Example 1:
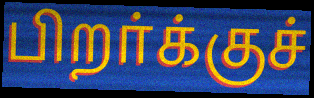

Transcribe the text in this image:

பிறர்க்குச்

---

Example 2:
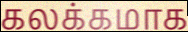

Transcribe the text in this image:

கலக்கமாக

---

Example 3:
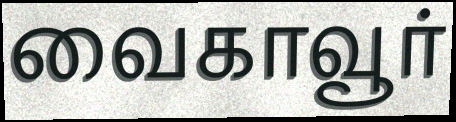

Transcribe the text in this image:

வைகாவூர்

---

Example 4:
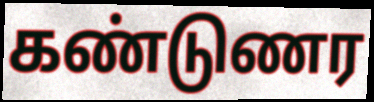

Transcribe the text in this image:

கண்டுணர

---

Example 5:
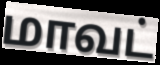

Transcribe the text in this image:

மாவட்